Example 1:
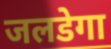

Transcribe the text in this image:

जलडेगा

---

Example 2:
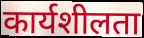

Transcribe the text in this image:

कार्यशीलता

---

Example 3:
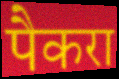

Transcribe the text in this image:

पैकरा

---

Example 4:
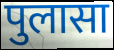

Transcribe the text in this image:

पुलासा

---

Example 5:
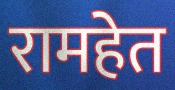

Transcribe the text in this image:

रामहेत